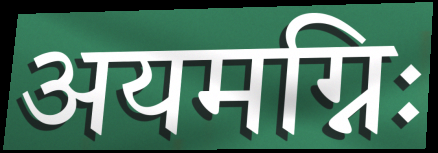
अयमग्निः